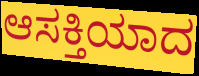
ಆಸಕ್ತಿಯಾದ